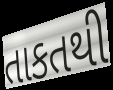
તાકતથી